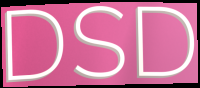
DSD